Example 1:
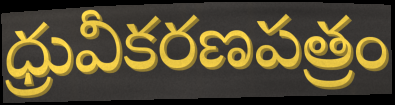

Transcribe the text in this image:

ధ్రువీకరణపత్రం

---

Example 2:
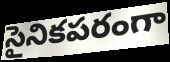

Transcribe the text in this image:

సైనికపరంగా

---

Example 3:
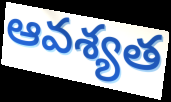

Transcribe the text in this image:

ఆవశ్యత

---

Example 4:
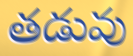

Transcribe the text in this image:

తడువు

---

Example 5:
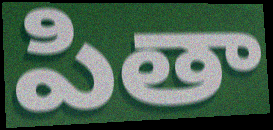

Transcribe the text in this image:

పితా